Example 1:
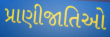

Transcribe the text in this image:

પ્રાણીજાતિઓ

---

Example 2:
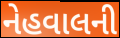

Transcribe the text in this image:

નેહવાલની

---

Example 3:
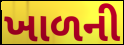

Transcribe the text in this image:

ખાળની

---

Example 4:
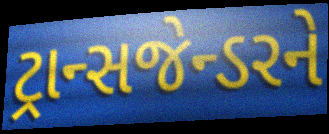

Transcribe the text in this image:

ટ્રાન્સજેન્ડરને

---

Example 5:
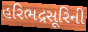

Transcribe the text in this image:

હરિભદ્રસૂરિની